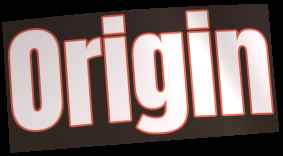
Origin